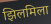
झिलमिला